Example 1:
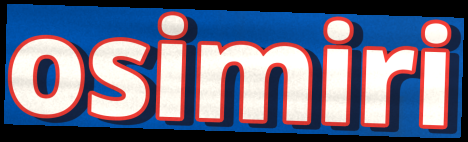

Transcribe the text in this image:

osimiri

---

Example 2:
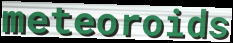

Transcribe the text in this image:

meteoroids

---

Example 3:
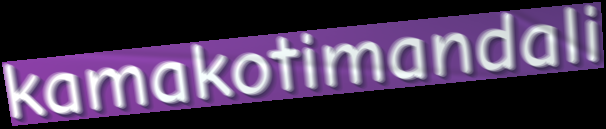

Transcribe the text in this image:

kamakotimandali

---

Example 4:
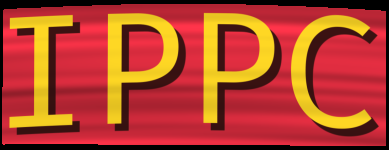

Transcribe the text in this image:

IPPC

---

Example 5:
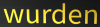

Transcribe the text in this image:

wurden